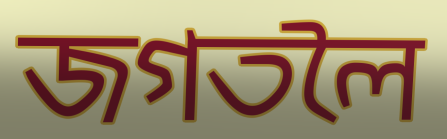
জগতলৈ